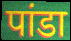
पांडा